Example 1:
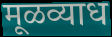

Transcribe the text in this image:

मूळव्याध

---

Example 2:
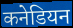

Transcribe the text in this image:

कनेडियन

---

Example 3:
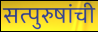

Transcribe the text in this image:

सत्पुरुषांची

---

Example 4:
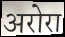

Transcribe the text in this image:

अरोरा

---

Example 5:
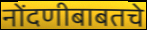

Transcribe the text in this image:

नोंदणीबाबतचे